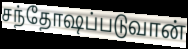
சந்தோஷப்படுவான்